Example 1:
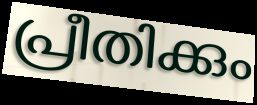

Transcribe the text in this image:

പ്രീതിക്കും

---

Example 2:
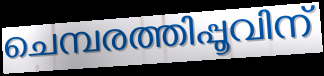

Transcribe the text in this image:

ചെമ്പരത്തിപ്പൂവിന്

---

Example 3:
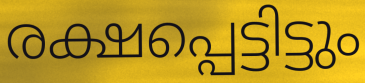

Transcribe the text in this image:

രക്ഷപ്പെട്ടിട്ടും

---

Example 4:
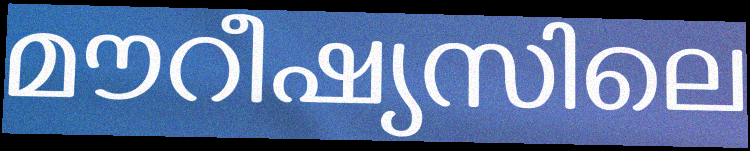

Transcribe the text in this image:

മൗറീഷ്യസിലെ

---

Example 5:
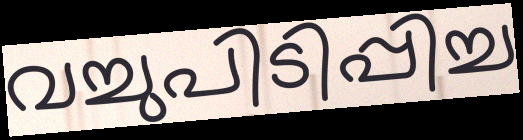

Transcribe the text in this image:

വച്ചുപിടിപ്പിച്ച